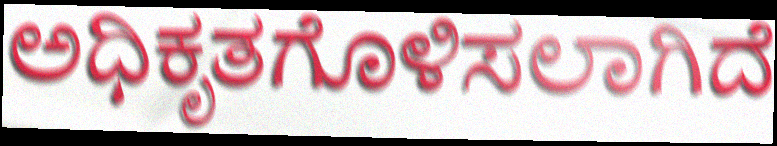
ಅಧಿಕೃತಗೊಳಿಸಲಾಗಿದೆ